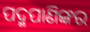
ପଦ୍ମପାଣିଙ୍କର